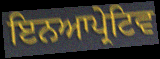
ਇਨਆਪ੍ਰੇਟਿਵ